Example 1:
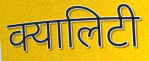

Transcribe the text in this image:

क्यालिटी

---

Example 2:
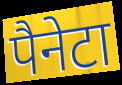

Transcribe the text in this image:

पैनेटा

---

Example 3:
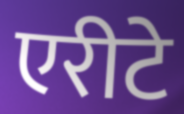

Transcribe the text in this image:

एरीटे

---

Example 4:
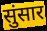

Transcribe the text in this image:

सुंसार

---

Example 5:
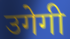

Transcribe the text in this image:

उगेगी